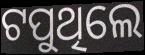
ଟପୁଥିଲେ